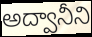
అద్వానీని